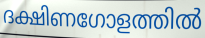
ദക്ഷിണഗോളത്തിൽ